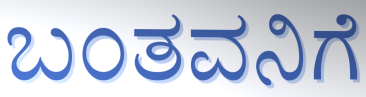
ಬಂತವನಿಗೆ